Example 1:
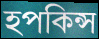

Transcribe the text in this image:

হপকিন্স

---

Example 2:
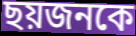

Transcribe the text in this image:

ছয়জনকে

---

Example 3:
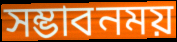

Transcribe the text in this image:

সম্ভাবনময়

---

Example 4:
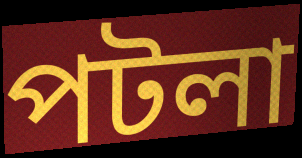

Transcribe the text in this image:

পটলা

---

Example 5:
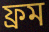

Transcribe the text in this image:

ফ্রম